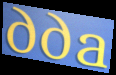
dda